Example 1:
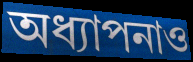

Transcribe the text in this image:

অধ্যাপনাও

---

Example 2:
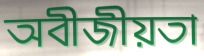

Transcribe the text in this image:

অবীজীয়তা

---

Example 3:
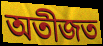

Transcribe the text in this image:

অতীজত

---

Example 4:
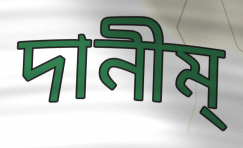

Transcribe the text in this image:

দানীম্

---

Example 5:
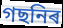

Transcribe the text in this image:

গছনিৰ